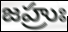
జహ్రుః